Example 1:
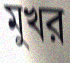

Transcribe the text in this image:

মুখর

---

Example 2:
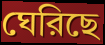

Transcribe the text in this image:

ঘেরিছে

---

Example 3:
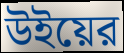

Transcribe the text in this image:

উইয়ের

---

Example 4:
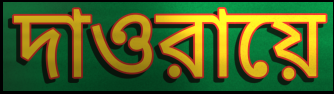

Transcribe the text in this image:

দাওরায়ে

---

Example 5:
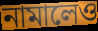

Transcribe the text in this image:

নামালেও